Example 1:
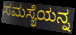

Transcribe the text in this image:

ಸಮಸ್ಯೆಯನ್ನ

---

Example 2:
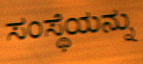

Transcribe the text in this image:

ಸಂಸ್ಥೆಯನ್ನು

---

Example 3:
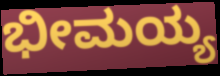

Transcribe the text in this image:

ಭೀಮಯ್ಯ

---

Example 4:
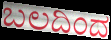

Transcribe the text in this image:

ಬಲದಿಂದ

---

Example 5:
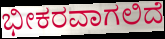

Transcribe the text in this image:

ಭೀಕರವಾಗಲಿದೆ